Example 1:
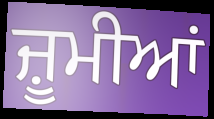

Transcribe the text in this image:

ਜ਼ੂਮੀਆਂ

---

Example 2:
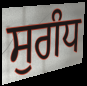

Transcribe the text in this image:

ਸੁਗੰਧ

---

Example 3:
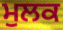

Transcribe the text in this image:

ਮੁਲਕ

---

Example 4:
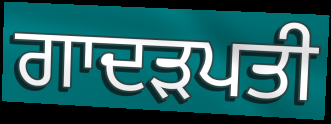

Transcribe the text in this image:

ਗਾਦੜਪਤੀ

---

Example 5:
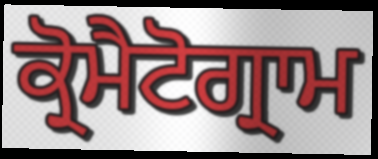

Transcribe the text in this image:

ਕ੍ਰੋਮੈਟੋਗ੍ਰਾਮ